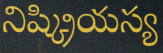
నిష్క్రియస్య